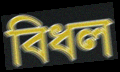
বিধল